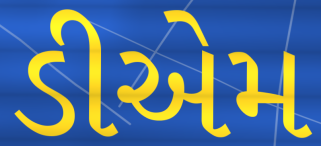
ડીએમ